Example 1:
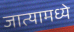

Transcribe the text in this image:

जात्यामध्ये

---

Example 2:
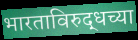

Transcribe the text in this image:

भारताविरुद्धच्या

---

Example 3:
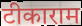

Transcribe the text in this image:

टीकाराम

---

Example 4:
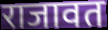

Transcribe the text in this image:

राजावत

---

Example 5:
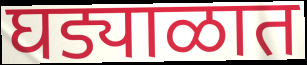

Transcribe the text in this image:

घड्याळात